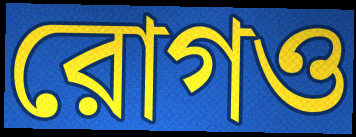
রোগও